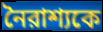
নৈরাশ্যকে